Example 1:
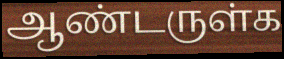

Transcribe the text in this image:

ஆண்டருள்க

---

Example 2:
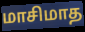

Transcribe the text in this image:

மாசிமாத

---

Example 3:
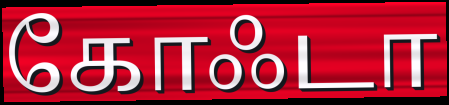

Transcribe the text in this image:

கோஃடா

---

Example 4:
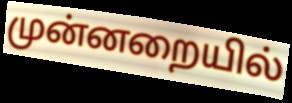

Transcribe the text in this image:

முன்னறையில்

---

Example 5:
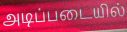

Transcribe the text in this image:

அடிப்படையில்